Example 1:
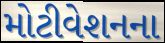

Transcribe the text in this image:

મોટીવેશનના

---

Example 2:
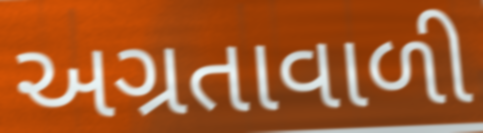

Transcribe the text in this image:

અગ્રતાવાળી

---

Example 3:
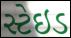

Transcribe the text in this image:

સ્ટેઇડ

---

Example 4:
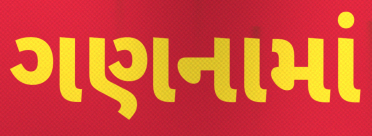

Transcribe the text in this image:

ગણનામાં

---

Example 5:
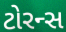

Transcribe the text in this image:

ટોરન્સ